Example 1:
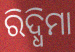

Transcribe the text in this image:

ରିଦ୍ଧିମା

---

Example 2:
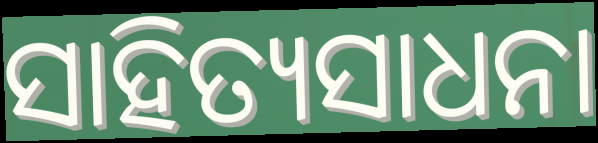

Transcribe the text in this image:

ସାହିତ୍ୟସାଧନା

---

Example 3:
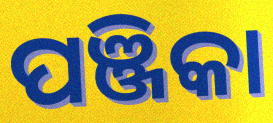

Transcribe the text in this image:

ପଞ୍ଜିକା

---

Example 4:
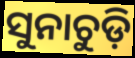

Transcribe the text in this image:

ସୁନାଚୁଡ଼ି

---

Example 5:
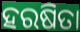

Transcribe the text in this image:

ହରଷିତା